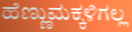
ಹೆಣ್ಣುಮಕ್ಕಳಿಗಲ್ಲ